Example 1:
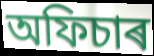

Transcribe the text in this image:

অফিচাৰ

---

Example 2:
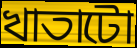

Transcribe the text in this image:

খাতাটো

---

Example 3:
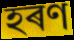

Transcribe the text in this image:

হৰণ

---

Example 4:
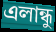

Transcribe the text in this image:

এলান্ধু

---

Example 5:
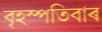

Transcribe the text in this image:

বৃহস্পতিবাৰ